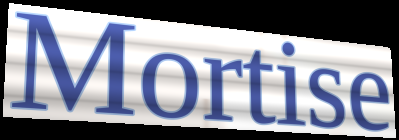
Mortise